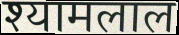
श्यामलाल